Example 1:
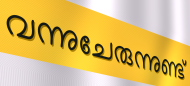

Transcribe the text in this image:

വന്നുചേരുന്നുണ്ട്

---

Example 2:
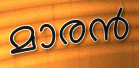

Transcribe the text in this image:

മാരൻ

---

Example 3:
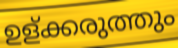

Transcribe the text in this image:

ഉള്ക്കരുത്തും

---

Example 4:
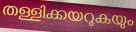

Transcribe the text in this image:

തള്ളിക്കയറുകയും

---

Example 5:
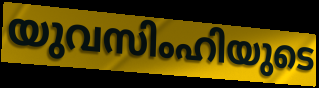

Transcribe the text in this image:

യുവസിംഹിയുടെ